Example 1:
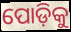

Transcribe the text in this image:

ପୋଡ଼ିକୁ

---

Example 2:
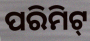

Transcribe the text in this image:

ପରିମିଟ୍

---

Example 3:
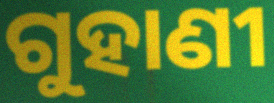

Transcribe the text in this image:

ଗୁହାଣୀ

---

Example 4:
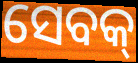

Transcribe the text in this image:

ସେବକ୍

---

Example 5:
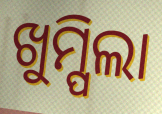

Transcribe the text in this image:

ଖୁମ୍ପିଲା